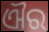
ଐର